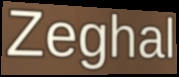
Zeghal